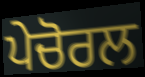
ਪੇਚੋਰਲ